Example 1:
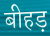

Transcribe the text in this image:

बीहड़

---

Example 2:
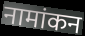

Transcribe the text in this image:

नामांकन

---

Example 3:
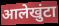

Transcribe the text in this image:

आलेखुंटा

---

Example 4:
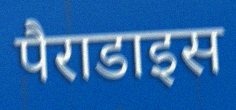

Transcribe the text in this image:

पैराडाइस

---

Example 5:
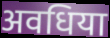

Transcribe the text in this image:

अवधिया